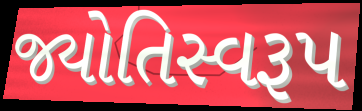
જ્યોતિસ્વરૂપ